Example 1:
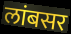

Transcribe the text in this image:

लांबसर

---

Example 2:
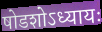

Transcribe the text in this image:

षोडशोऽध्यायः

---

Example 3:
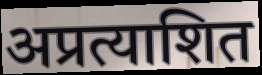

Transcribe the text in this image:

अप्रत्याशित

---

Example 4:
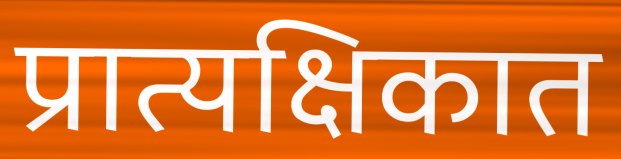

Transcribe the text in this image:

प्रात्यक्षिकात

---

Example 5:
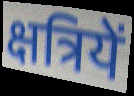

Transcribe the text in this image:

क्षत्रियें